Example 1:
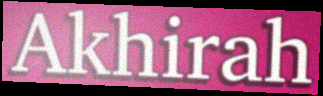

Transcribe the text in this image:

Akhirah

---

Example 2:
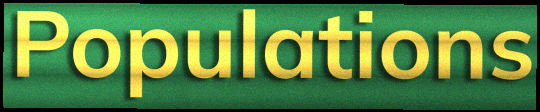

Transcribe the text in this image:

Populations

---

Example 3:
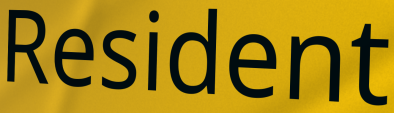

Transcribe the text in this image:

Resident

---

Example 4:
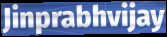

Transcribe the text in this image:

Jinprabhvijay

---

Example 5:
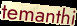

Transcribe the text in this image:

temanthi